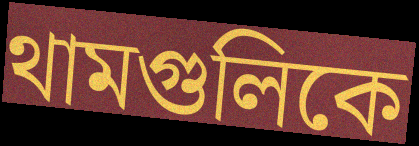
থামগুলিকে